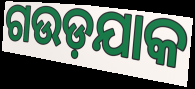
ଗଉଡ଼ଯାକ